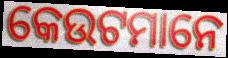
କେଉଟମାନେ